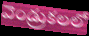
వెండ్రుకలలో